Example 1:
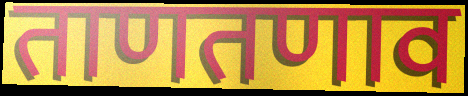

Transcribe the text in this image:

ताणतणाव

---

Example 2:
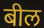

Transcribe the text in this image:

बील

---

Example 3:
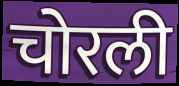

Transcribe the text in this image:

चोरली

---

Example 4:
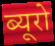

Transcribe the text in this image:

ब्यूरो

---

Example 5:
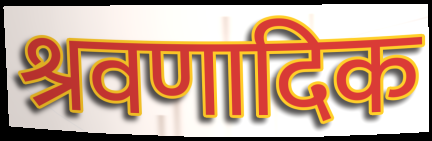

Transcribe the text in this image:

श्रवणादिक